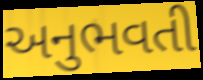
અનુભવતી